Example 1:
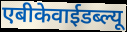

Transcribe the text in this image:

एबीकेवाईडब्ल्यू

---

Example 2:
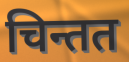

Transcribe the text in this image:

चिन्तत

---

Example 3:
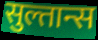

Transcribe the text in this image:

सुल्तान्स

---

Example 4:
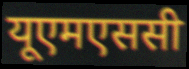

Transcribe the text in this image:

यूएमएससी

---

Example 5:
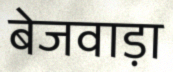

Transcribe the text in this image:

बेजवाड़ा